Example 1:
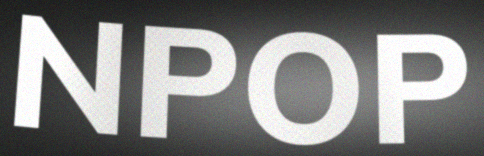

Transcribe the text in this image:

NPOP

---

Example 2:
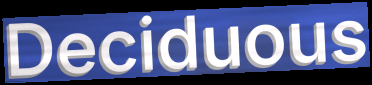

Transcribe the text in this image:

Deciduous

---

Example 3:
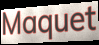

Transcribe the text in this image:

Maquet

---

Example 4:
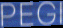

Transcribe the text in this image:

PEGI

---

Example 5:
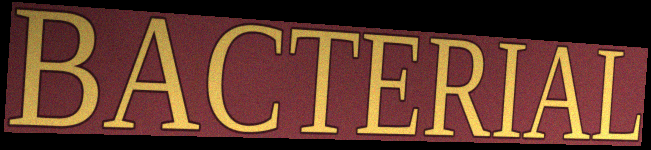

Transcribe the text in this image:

BACTERIAL